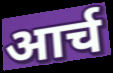
आर्च